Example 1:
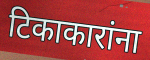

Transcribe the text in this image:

टिकाकारांना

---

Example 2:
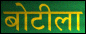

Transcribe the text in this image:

बोटीला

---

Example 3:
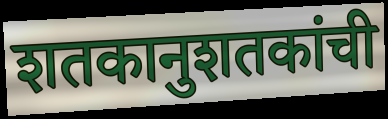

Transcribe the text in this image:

शतकानुशतकांची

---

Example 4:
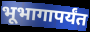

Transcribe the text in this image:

भूभागापर्यंत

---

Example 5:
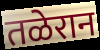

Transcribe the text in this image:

तळेरान